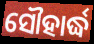
ସୌହାର୍ଦ୍ଧ